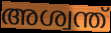
അശ്വന്ത്